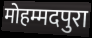
मोहम्मदपुरा